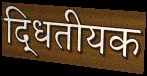
द्धितीयक